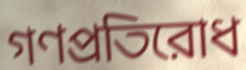
গণপ্রতিরোধ